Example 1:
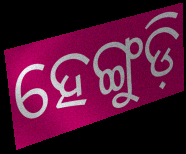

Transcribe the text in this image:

ହେଙ୍ଗୁଡ଼ି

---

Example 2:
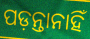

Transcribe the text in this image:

ପଡ଼ନ୍ତାନାହିଁ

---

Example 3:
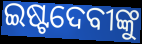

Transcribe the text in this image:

ଇଷ୍ଟଦେବୀଙ୍କୁ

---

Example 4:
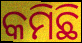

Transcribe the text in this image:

କମିଛି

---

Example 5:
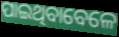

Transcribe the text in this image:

ପାଇଥିବାବେଳେ